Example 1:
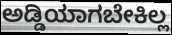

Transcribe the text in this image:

ಅಡ್ಡಿಯಾಗಬೇಕಿಲ್ಲ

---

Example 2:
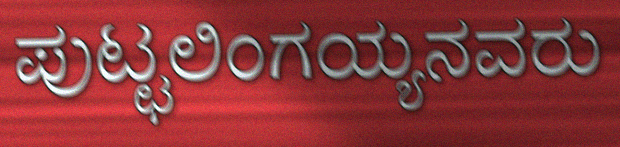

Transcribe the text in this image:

ಪುಟ್ಟಲಿಂಗಯ್ಯನವರು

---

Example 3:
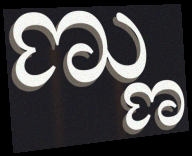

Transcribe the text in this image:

ಣ್ಣು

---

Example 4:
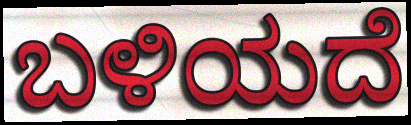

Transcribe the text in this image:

ಬಳಿಯದೆ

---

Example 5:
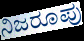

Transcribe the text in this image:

ನಿಜರೂಪು